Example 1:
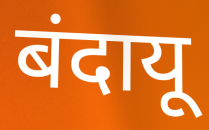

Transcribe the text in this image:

बंदायू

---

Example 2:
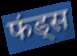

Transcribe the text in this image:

फंड्स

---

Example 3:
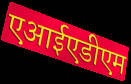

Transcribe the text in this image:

एआईएडीएम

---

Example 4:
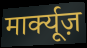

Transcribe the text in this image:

मार्क्यूज़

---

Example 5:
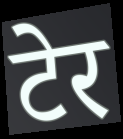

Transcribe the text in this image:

टेर